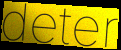
deter